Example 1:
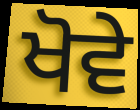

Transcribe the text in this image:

ਖੋਵੇ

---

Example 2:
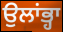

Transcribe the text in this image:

ਉਲਾਂਭ੍ਹਾ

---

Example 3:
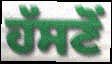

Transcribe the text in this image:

ਹੱਸਣੋਂ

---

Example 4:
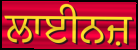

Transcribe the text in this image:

ਲਾਈਨਜ਼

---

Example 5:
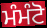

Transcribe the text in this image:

ਮੰਮੰਟੋ